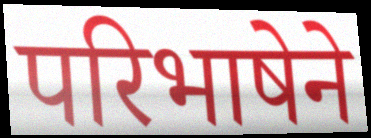
परिभाषेने